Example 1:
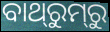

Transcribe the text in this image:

ବାଥ୍‌ରୁମ୍‌ରୁ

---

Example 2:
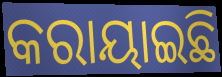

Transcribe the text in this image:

କରାୟାଇଛି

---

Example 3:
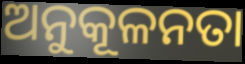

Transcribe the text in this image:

ଅନୁକୂଳନତା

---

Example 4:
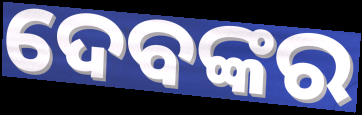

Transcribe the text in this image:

ଦେବଙ୍କର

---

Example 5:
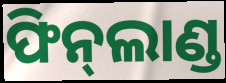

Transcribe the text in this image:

ଫିନ୍‌ଲାଣ୍ଡ